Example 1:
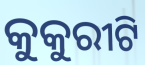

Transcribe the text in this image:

କୁକୁରୀଟି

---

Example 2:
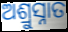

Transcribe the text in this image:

ଅଶ୍ରୁସ୍ନାତ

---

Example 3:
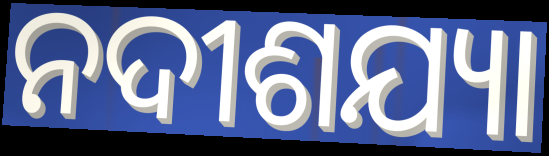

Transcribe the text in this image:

ନଦୀଶଯ୍ୟା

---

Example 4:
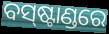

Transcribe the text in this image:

ବସ୍‌ଷ୍ଟାଣ୍ଡରେ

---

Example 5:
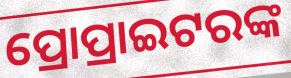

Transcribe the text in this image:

ପ୍ରୋପ୍ରାଇଟରଙ୍କ